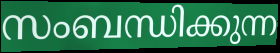
സംബന്ധിക്കുന്ന